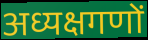
अध्यक्षगणों